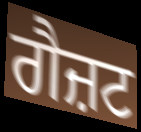
ਗੈਜ਼ਟ